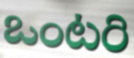
ఒంటరి